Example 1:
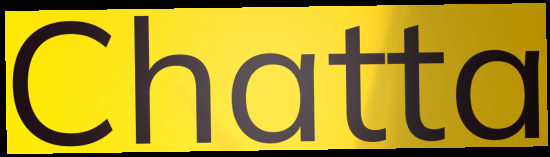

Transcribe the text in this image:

Chatta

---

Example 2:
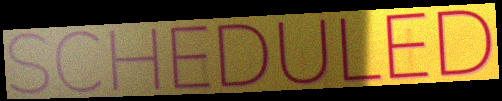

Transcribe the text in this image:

SCHEDULED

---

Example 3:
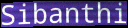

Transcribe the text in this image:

Sibanthi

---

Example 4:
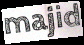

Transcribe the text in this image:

majid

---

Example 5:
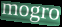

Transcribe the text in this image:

mogro